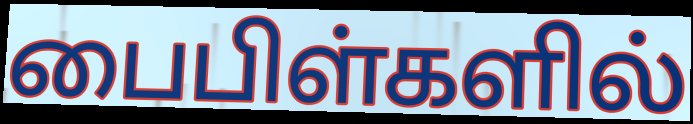
பைபிள்களில்